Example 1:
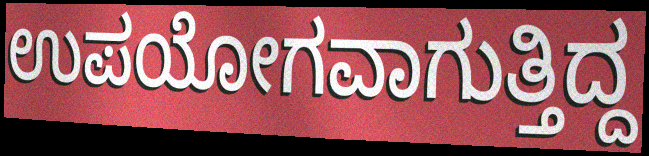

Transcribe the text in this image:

ಉಪಯೋಗವಾಗುತ್ತಿದ್ದ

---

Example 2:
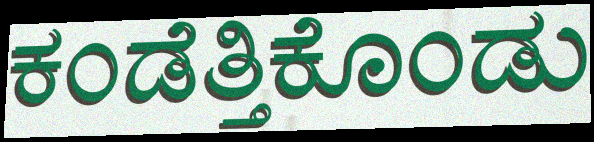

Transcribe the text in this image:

ಕಂಡೆತ್ತಿಕೊಂಡು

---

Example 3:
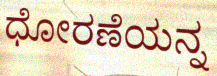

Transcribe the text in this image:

ಧೋರಣೆಯನ್ನ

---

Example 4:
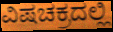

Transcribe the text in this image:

ವಿಷಚಕ್ರದಲ್ಲಿ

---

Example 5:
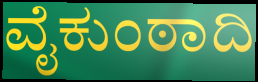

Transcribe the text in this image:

ವೈಕುಂಠಾದಿ